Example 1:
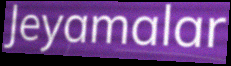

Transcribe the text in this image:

Jeyamalar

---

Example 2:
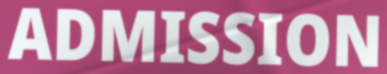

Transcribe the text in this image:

ADMISSION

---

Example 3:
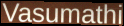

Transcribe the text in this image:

Vasumathi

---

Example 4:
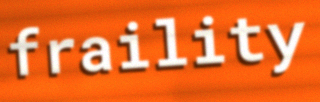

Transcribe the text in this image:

fraility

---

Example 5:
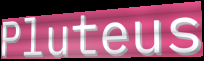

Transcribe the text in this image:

Pluteus